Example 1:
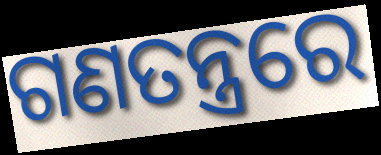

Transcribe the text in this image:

ଗଣତନ୍ତ୍ରରେ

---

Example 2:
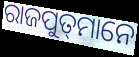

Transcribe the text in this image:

ରାଜପୁତ୍‍ମାନେ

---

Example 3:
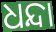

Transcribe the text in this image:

ଧନ୍ଦା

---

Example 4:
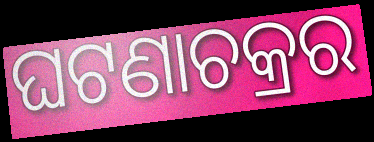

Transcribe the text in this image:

ଘଟଣାଚକ୍ରର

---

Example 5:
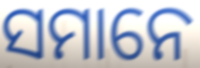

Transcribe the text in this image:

ସମାନେ